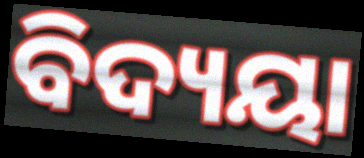
ବିଦ୍ୟୟା